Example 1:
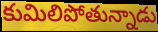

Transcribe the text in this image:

కుమిలిపోతున్నాడు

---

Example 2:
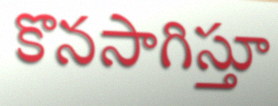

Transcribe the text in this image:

కొనసాగిస్తూ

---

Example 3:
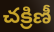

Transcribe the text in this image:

చక్రిణీ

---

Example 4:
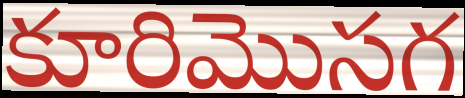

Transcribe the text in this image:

కూరిమొసగ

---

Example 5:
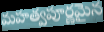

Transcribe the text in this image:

మహత్వపూర్ణమైన